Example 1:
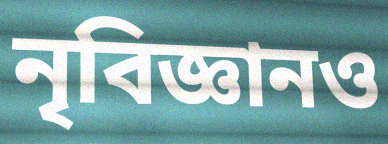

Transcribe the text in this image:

নৃবিজ্ঞানও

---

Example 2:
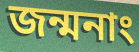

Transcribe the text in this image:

জন্মনাং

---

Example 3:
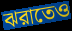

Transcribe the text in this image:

ঝরাতেও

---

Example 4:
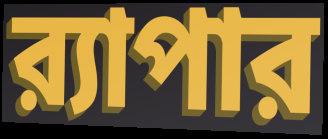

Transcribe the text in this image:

র‍্যাপার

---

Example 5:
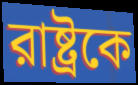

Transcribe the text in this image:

রাষ্ট্রকে